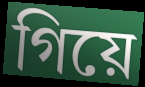
গিয়ে